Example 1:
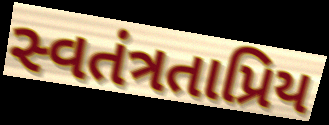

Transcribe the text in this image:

સ્વતંત્રતાપ્રિય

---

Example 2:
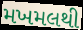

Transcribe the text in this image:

મખમલથી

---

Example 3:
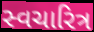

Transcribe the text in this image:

સ્વચારિત્ર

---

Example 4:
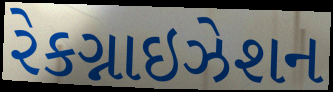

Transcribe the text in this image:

રેકગ્નાઇઝેશન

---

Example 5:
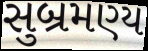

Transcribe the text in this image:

સુબ્રમણ્ય